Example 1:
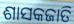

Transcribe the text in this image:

ଶାସକଜାତି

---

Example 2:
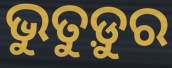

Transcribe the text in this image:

ଭୁତୁଡ଼ୁର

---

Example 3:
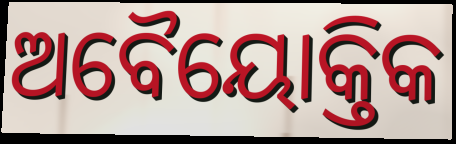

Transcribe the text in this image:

ଅବୈୟୋକ୍ତିକ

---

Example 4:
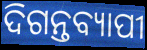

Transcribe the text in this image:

ଦିଗନ୍ତବ୍ୟାପୀ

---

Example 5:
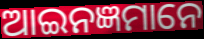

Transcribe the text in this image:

ଆଇନଜ୍ଞମାନେ